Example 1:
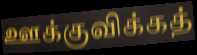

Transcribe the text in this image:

ஊக்குவிக்கத்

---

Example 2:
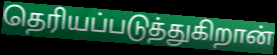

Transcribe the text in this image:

தெரியப்படுத்துகிறான்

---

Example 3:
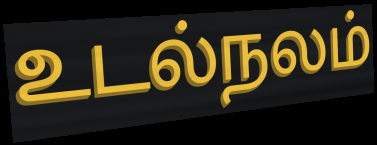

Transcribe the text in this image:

உடல்நலம்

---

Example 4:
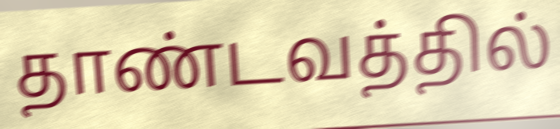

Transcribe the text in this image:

தாண்டவத்தில்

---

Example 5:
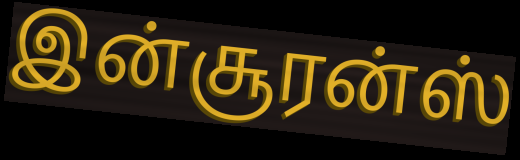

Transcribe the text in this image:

இன்சூரன்ஸ்